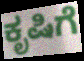
ಕೃಷಿಗೆ